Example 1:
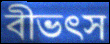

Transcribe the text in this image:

বীভৎস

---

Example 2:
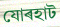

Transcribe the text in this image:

যোৰহাট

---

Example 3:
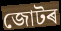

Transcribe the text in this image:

জোটৰ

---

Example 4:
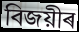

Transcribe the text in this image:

বিজয়ীৰ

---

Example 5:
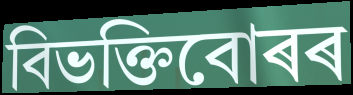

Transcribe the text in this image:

বিভক্তিবোৰৰ